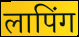
लापिंग